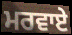
ਮਰਵਾਏ